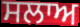
ਸਲਾਅ